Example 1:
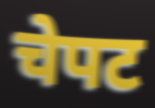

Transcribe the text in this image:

चेपट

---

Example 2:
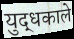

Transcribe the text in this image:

युद्धकाले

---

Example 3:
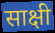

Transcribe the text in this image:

साक्षी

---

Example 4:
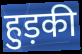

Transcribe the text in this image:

हुड़की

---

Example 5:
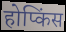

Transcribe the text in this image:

होप्किंस